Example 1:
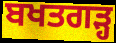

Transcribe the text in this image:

ਬਖਤਗੜ੍ਹ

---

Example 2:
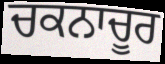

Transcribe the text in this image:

ਚਕਨਾਚੂਰ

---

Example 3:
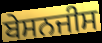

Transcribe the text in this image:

ਬੇਸਨਜੀਸ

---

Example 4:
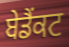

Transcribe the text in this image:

ਬੇਡੈਂਕਟ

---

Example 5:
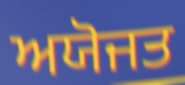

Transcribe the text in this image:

ਅਯੋਜਤ